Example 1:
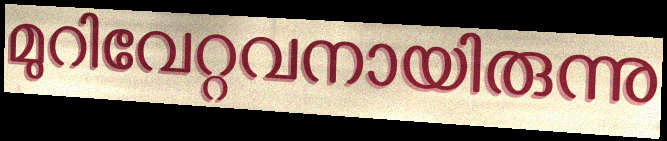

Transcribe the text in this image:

മുറിവേറ്റവനായിരുന്നു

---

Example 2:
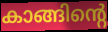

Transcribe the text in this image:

കാങ്ങിന്റെ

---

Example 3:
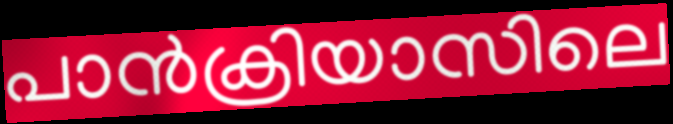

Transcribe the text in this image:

പാൻക്രിയാസിലെ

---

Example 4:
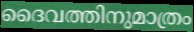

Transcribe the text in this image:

ദൈവത്തിനുമാത്രം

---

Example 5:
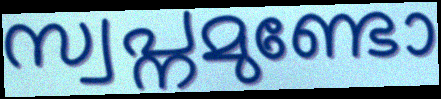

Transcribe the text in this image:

സ്വപ്നമുണ്ടോ